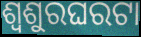
ଶ୍ୱଶୁରଘରଟା